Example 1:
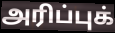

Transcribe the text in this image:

அரிப்புக்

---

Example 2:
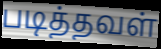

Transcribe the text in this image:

படித்தவள்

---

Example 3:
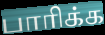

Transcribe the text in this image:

பாரிக்க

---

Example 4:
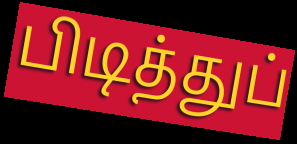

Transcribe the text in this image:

பிடித்துப்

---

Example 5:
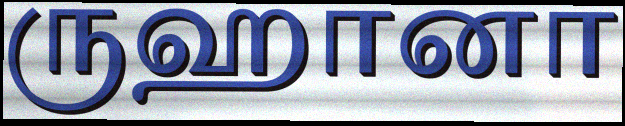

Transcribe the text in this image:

ருஹானா